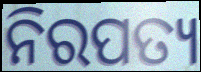
ନିରପତ୍ୟ